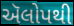
ઍલોપથી